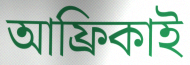
আফ্ৰিকাই